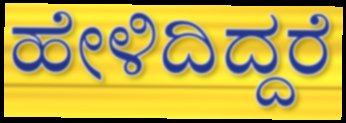
ಹೇಳಿದಿದ್ದರೆ